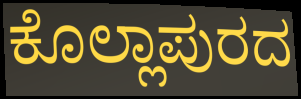
ಕೊಲ್ಲಾಪುರದ